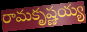
రామకృష్ణయ్య